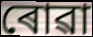
ৰোৱা